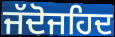
ਜੱਦੋਜਹਿਦ